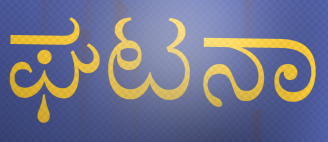
ಘಟನಾ